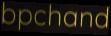
bpchand